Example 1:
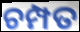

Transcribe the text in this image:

ଚମ୍ପତ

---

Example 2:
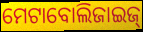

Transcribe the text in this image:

ମେଟାବୋଲିଜାଇଜ୍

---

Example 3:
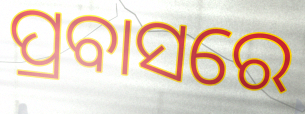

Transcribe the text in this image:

ପ୍ରବାସରେ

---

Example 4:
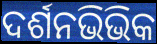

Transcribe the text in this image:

ଦର୍ଶନଭିଭିକ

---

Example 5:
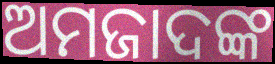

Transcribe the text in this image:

ଅମଜାଦଙ୍କ